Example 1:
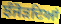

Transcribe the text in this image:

ਝੰਜੋੜਦਿਆਂ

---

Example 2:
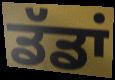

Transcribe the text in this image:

ਡੱਡਾਂ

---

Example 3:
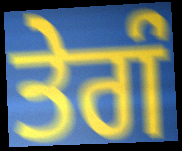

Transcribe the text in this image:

ਤੇਗੰ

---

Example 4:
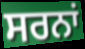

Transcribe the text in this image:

ਸਰਨਾਂ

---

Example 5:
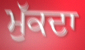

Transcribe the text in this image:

ਮੁੱਕਦਾ